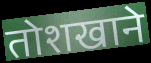
तोशखाने